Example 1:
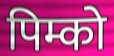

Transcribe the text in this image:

पिम्को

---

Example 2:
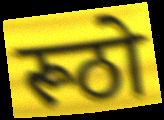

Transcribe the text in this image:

रूठो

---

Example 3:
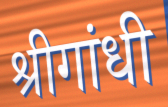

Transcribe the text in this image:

श्रीगांधी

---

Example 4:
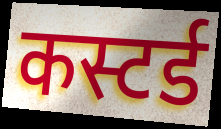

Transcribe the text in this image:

कस्टर्ड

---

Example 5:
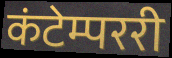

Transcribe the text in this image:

कंटेम्पररी